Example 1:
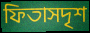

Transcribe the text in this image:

ফিতাসদৃশ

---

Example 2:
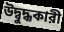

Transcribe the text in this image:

উদ্বুদ্ধকারী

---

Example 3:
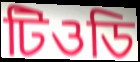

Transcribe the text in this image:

টিওডি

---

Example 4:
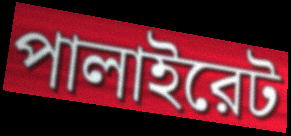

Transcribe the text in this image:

পালাইরেট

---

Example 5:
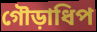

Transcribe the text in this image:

গৌড়াধিপ